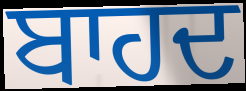
ਬਾਹਦ